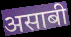
असाबी